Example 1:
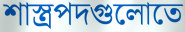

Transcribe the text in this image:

শাস্ত্রপদগুলোতে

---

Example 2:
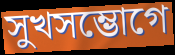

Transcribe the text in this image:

সুখসম্ভোগে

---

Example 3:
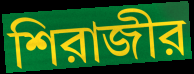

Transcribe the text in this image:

শিরাজীর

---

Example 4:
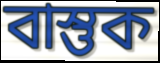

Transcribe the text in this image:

বাস্তুক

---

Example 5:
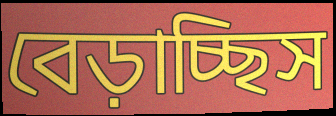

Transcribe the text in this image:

বেড়াচ্ছিস